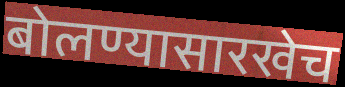
बोलण्यासारखेच